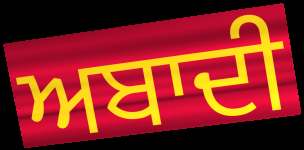
ਅਬਾਦੀ